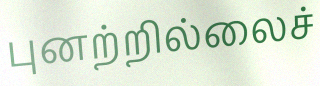
புனற்றில்லைச்